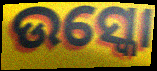
ଉସ୍କୋ